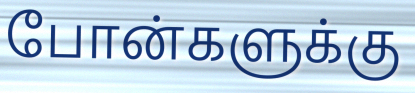
போன்களுக்கு